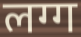
लग्ग